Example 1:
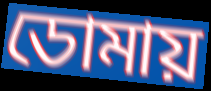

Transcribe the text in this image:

ডোমায়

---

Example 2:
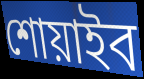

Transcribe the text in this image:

শোয়াইব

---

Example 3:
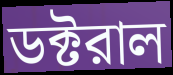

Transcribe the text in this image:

ডক্টরাল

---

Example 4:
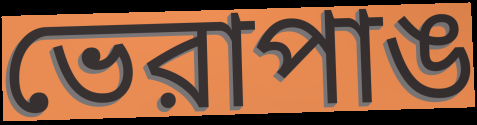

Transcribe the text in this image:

ভেরাপাঙ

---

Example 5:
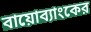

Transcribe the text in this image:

বায়োব্যাংকের